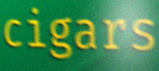
cigars